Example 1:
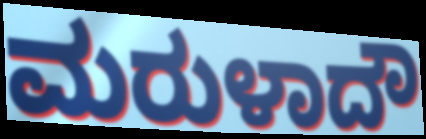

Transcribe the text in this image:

ಮರುಳಾದೌ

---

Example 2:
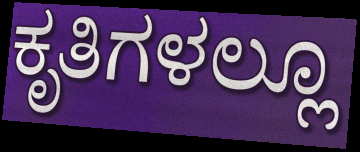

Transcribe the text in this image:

ಕೃತಿಗಳಲ್ಲೂ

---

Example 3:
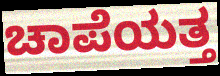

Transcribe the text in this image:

ಚಾಪೆಯತ್ತ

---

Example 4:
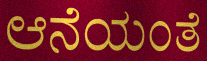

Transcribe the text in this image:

ಆನೆಯಂತೆ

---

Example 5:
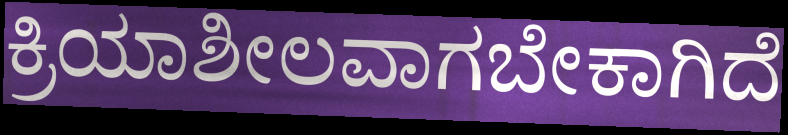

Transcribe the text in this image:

ಕ್ರಿಯಾಶೀಲವಾಗಬೇಕಾಗಿದೆ